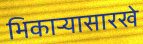
भिकार्‍यासारखे